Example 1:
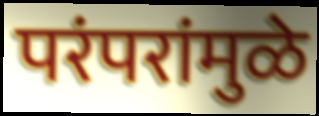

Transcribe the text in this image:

परंपरांमुळे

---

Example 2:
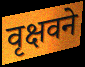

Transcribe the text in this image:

वृक्षवने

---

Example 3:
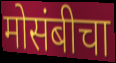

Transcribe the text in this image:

मोसंबीचा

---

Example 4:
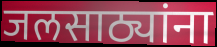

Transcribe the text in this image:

जलसाठ्यांना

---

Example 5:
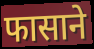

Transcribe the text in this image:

फासाने